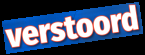
verstoord